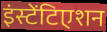
इंस्टेंटिएशन